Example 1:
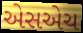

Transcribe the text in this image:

એસએચ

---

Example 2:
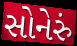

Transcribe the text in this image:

સોનેરું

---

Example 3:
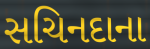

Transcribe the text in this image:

સચિનદાના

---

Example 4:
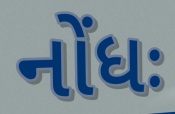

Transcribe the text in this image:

નોંધઃ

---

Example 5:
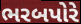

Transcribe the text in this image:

ભરબપોરે